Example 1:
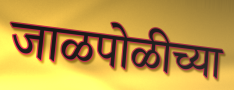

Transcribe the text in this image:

जाळपोळीच्या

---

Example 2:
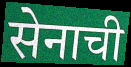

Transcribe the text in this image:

सेनाची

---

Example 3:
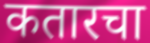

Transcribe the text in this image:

कतारचा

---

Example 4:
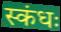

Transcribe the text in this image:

स्कंधः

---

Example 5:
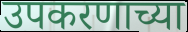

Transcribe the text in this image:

उपकरणाच्या